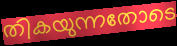
തികയുന്നതോടെ